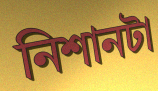
নিশানটা